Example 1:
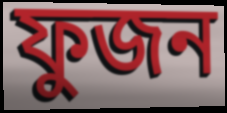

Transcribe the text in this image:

ফুজন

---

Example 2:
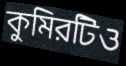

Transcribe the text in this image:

কুমিরটিও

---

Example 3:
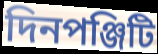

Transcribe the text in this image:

দিনপঞ্জিটি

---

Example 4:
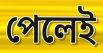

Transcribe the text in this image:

পেলেই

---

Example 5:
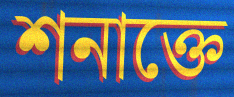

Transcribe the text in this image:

শনাক্তে